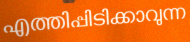
എത്തിപ്പിടിക്കാവുന്ന